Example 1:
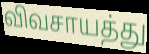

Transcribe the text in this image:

விவசாயத்து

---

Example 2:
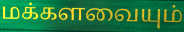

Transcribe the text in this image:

மக்களவையும்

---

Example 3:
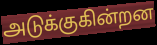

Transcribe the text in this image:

அடுக்குகின்றன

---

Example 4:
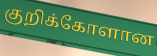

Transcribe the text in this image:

குறிக்கோளான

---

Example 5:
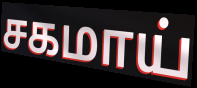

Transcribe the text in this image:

சகமாய்